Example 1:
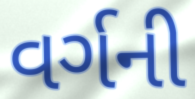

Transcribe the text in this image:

વર્ગની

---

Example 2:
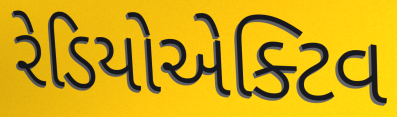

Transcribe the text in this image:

રેડિયોએક્ટિવ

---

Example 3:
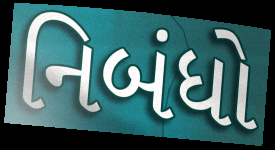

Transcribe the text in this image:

નિબંધો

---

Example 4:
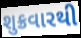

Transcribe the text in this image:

શુક્રવારથી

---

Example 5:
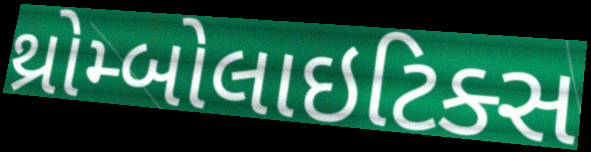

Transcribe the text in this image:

થ્રોમ્બોલાઇટિક્સ